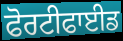
ਫੋਰਟੀਫਾਈਡ